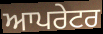
ਆਪਰੇਟਰ